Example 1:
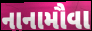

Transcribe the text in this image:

નાનામૌવા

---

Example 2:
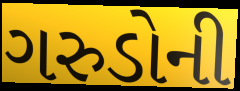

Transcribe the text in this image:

ગરુડોની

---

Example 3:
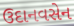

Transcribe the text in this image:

ઉદાનવસેન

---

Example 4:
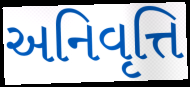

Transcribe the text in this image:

અનિવૃત્તિ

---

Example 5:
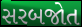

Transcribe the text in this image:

સરબજોત